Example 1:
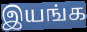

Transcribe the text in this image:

இயங்க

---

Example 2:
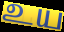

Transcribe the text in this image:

உய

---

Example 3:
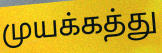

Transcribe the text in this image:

முயக்கத்து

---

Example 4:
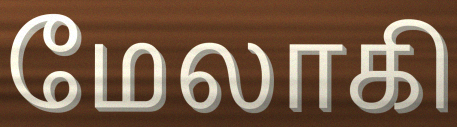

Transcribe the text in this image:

மேலாகி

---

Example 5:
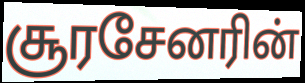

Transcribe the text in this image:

சூரசேனரின்